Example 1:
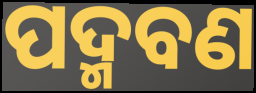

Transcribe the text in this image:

ପଦ୍ମବଣ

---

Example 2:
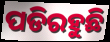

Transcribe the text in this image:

ପଡିରହୁଛି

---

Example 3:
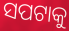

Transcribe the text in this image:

ସପଟାକୁ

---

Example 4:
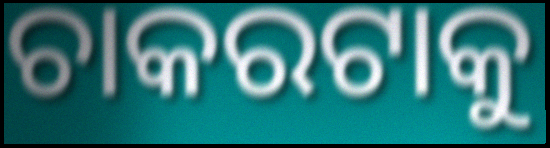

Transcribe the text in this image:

ଚାକରଟାକୁ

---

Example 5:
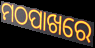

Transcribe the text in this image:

ମଠପାଖରେ